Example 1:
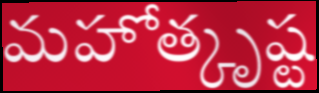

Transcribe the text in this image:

మహోత్కృష్ట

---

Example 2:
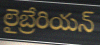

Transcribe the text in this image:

లైబ్రేరియన్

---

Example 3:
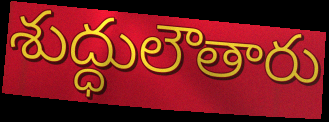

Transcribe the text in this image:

శుద్ధులౌతారు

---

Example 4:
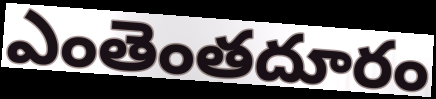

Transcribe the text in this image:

ఎంతెంతదూరం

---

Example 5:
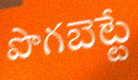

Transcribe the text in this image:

పొగబెట్టే